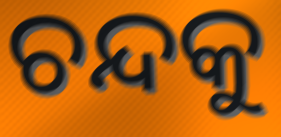
ଚନ୍ଦକୁ